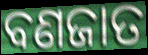
ବଣଜାତ